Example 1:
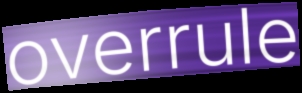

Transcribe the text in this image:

overrule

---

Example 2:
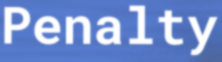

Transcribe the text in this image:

Penalty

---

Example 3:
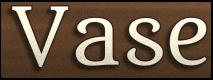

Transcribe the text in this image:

Vase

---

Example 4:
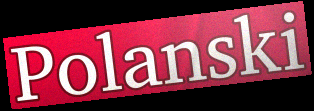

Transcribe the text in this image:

Polanski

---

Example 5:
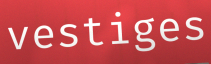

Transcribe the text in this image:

vestiges